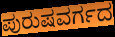
ಪುರುಷವರ್ಗದ